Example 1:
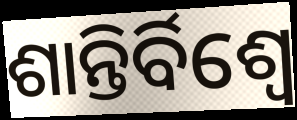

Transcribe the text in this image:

ଶାନ୍ତିର୍ବିଶ୍ୱେ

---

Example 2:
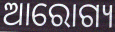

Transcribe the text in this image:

ଆରୋଗ୍ଯ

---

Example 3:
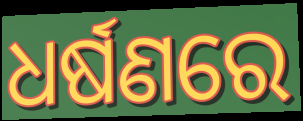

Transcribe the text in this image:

ଧର୍ଷଣରେ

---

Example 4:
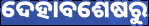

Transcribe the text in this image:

ଦେହାବଶେଷରୁ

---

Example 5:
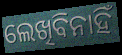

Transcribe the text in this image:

ଲେଖିବିନାହିଁ